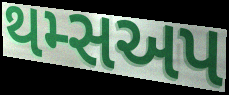
થમ્સઅપ